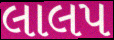
લાલપ